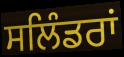
ਸਲਿੰਡਰਾਂ